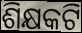
ଶିକ୍ଷକଟି